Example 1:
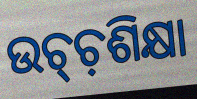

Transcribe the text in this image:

ଉଚ୍ଚ଼ଶିକ୍ଷା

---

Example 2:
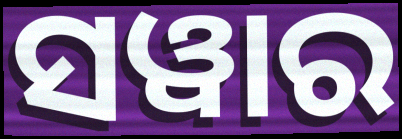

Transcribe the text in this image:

ସୱାର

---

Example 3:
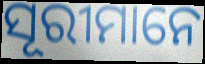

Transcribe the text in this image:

ସୂରୀମାନେ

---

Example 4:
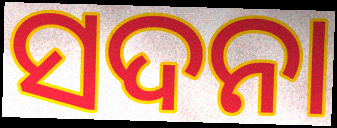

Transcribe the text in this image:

ସଦନା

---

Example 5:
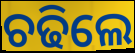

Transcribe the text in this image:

ଚଢିଲେ